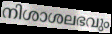
നിശാശലഭവും